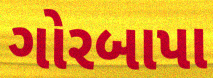
ગોરબાપા